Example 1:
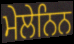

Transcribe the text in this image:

ਮੇਲੇਨਿਨ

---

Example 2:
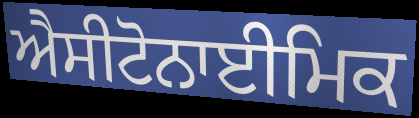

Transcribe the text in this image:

ਐਸੀਟੋਨਾਈਮਿਕ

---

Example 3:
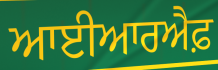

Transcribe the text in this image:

ਆਈਆਰਐਫ਼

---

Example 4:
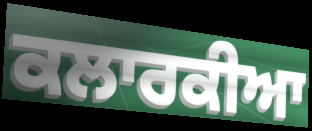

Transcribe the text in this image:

ਕਲਾਰਕੀਆ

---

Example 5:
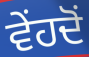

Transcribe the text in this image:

ਵੇਂਹਦੋਂ